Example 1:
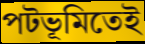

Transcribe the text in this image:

পটভূমিতেই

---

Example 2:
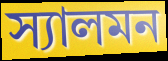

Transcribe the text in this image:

স্যালমন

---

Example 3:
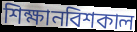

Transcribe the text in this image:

শিক্ষানবিশকাল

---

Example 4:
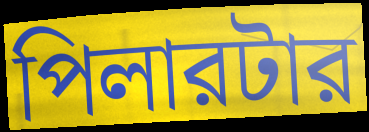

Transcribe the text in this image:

পিলারটার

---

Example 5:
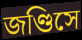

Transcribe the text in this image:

জণ্ডিসে